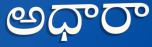
అధారా